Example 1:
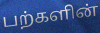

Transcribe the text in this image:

பற்களின்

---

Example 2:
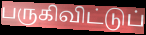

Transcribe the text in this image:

பருகிவிட்டுப்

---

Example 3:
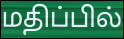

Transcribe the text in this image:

மதிப்பில்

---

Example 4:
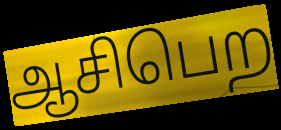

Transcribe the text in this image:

ஆசிபெற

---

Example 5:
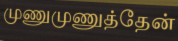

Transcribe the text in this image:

முணுமுணுத்தேன்